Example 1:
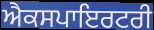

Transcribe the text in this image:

ਐਕਸਪਾਇਰਟਰੀ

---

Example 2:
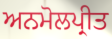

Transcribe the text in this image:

ਅਨਮੋਲਪ੍ਰੀਤ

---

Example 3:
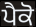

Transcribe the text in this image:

ਪੈਕੋ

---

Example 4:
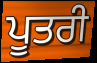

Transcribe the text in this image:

ਪੂਤਰੀ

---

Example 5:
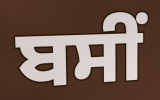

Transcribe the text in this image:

ਬਸੀਂ